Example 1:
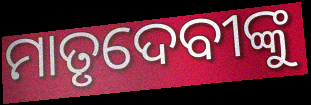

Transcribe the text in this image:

ମାତୃଦେବୀଙ୍କୁ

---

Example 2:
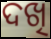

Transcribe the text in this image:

ଦଖି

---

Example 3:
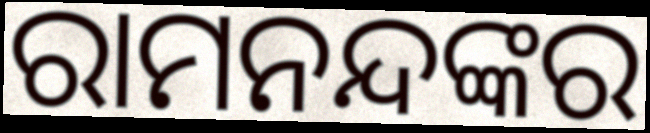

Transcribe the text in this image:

ରାମନନ୍ଦଙ୍କର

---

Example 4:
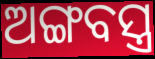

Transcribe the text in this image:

ଅଙ୍ଗବସ୍ତ୍ର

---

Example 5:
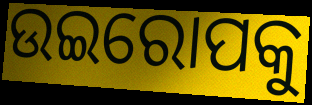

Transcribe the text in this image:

ଉଇରୋପକୁ